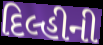
દિલ્હીની